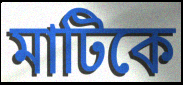
মাটিকে